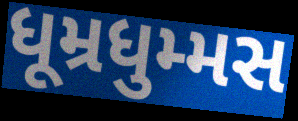
ધૂમ્રધુમ્મસ